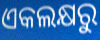
ଏକଲକ୍ଷରୁ